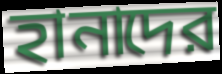
হানাদের